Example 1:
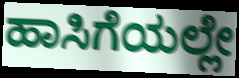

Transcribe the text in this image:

ಹಾಸಿಗೆಯಲ್ಲೇ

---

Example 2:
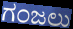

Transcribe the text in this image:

ಗಂಜಲು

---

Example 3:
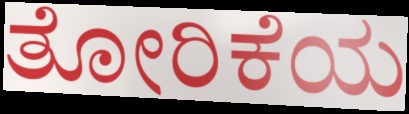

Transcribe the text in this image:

ತೋರಿಕೆಯ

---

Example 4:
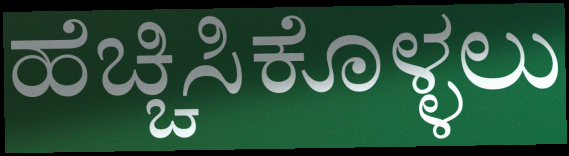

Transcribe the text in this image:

ಹೆಚ್ಚಿಸಿಕೊಳ್ಳಲು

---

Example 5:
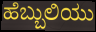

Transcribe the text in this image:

ಹೆಬ್ಬುಲಿಯು